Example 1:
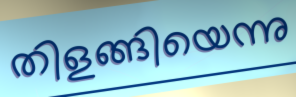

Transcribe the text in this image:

തിളങ്ങിയെന്നു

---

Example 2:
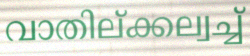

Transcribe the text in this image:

വാതില്ക്കല്വച്ച്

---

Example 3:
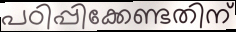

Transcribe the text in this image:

പഠിപ്പിക്കേണ്ടതിന്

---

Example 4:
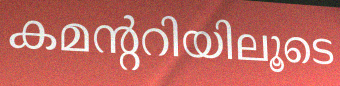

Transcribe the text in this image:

കമന്ററിയിലൂടെ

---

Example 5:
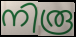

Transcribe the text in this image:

നിരൂ